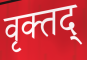
वृक्तद्